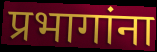
प्रभागांना